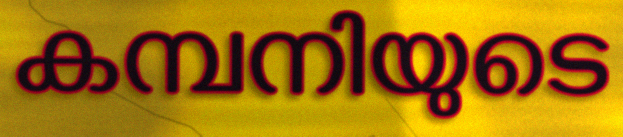
കമ്പനിയുടെ